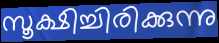
സൂക്ഷിച്ചിരിക്കുന്നു